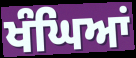
ਖੰਘਿਆਂ